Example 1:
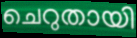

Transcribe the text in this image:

ചെറുതായി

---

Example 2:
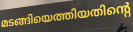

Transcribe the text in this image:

മടങ്ങിയെത്തിയതിന്റെ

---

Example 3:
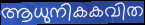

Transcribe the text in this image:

ആധുനികകവിത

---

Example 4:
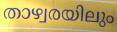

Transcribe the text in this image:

താഴ്വരയിലും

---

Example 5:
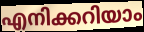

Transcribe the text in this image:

എനിക്കറിയാം